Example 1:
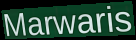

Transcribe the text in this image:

Marwaris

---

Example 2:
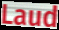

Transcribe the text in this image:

Laud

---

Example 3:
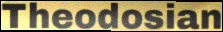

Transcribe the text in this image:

Theodosian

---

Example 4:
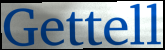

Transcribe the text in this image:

Gettell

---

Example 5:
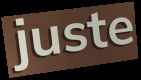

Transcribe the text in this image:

juste